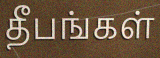
தீபங்கள்